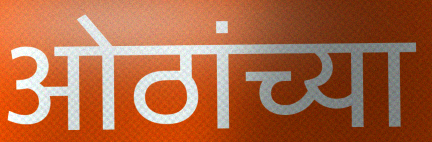
ओठांच्या